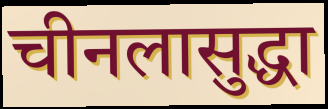
चीनलासुद्धा